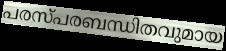
പരസ്പരബന്ധിതവുമായ